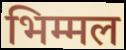
भिम्मल